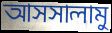
আসসালামু